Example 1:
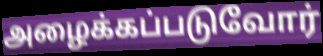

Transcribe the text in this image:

அழைக்கப்படுவோர்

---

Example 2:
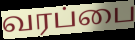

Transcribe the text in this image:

வரப்பை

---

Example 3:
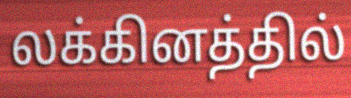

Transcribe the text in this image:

லக்கினத்தில்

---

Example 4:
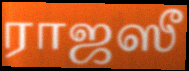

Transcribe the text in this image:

ராஜஸீ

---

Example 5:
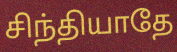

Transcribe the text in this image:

சிந்தியாதே